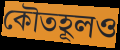
কৌতহূলও